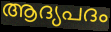
ആദ്യപദം